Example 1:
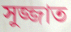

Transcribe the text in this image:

সুজ্জাত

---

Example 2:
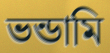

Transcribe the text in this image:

ভন্ডামি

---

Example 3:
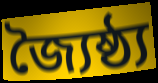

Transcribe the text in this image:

জ্যৈষ্ঠ্য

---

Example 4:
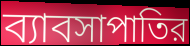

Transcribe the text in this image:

ব্যাবসাপাতির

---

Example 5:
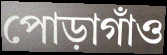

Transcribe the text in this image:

পোড়াগাঁও